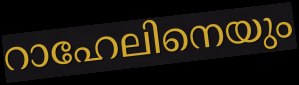
റാഹേലിനെയും